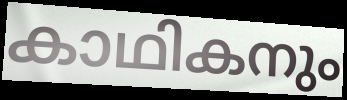
കാഥികനും